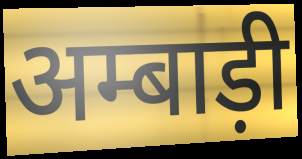
अम्बाड़ी